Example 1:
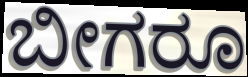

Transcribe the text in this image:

ಬೀಗರೂ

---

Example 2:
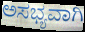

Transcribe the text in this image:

ಅಸಭ್ಯವಾಗಿ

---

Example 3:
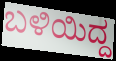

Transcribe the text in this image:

ಬಳಿಯಿದ್ದ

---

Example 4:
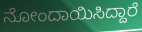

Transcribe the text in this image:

ನೋಂದಾಯಿಸಿದ್ದಾರೆ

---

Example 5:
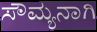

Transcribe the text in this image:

ಸೌಮ್ಯನಾಗಿ